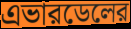
এভারডেলের